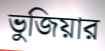
ভুজিয়ার